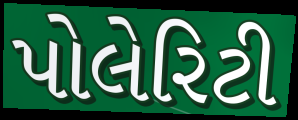
પોલેરિટી